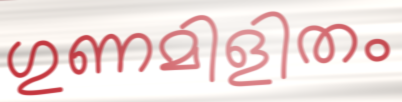
ഗുണമിളിതം